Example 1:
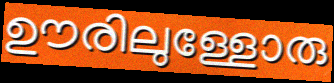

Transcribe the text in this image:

ഊരിലുള്ളോരു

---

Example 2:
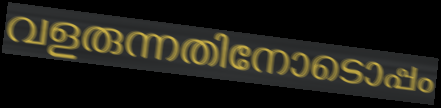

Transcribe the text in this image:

വളരുന്നതിനോടൊപ്പം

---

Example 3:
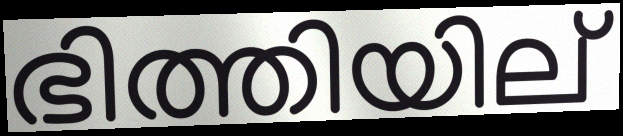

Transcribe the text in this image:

ഭിത്തിയില്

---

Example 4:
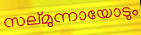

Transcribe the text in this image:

സല്മുന്നായോടും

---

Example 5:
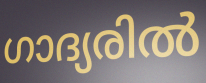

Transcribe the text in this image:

ഗാദ്യരിൽ